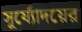
সূর্য্যোদয়ের